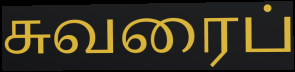
சுவரைப்